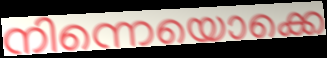
നിന്നെയൊക്കെ